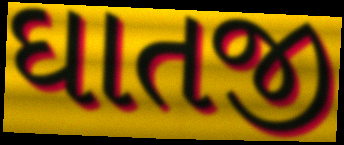
ઘાતજી